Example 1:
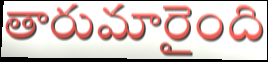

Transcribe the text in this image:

తారుమారైంది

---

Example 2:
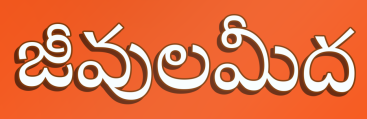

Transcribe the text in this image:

జీవులమీద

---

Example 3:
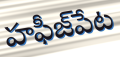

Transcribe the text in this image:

హఫీజ్‌పేట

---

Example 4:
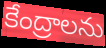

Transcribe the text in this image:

కేంద్రాలను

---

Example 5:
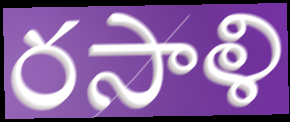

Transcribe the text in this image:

రసాళి